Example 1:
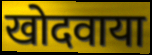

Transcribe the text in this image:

खोदवाया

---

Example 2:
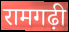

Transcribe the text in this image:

रामगढ़ी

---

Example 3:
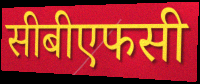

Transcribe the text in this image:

सीबीएफसी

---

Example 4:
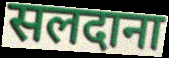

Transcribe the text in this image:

सलदाना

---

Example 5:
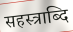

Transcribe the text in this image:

सहस्त्राब्दि